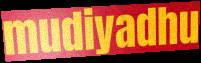
mudiyadhu